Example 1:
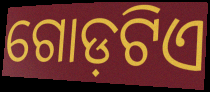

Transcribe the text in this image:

ଗୋଡ଼ଟିଏ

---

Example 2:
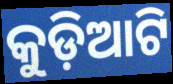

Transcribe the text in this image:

କୁଡ଼ିଆଟି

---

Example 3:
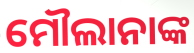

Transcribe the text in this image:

ମୌଲାନାଙ୍କ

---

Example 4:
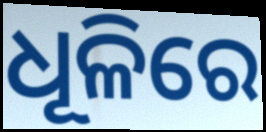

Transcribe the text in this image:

ଧୂଳିରେ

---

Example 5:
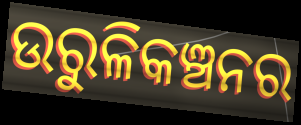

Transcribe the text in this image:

ଉରୁଳିକଞ୍ଚନର